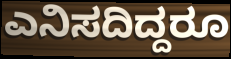
ಎನಿಸದಿದ್ದರೂ